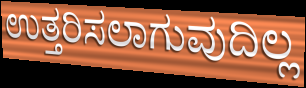
ಉತ್ತರಿಸಲಾಗುವುದಿಲ್ಲ